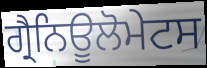
ਗ੍ਰੈਨਿਊਲੋਮੇਟਸ